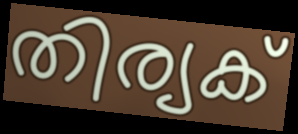
തിര്യക്